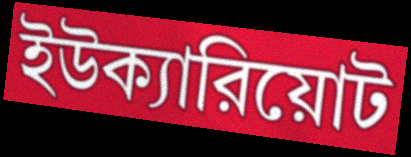
ইউক্যারিয়োট